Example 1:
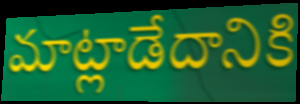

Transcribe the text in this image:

మాట్లాడేదానికి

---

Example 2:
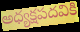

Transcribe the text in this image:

అధ్యక్షపదవికి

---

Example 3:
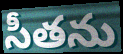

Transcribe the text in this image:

సీతను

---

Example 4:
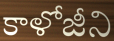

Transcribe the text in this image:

కాళోజీని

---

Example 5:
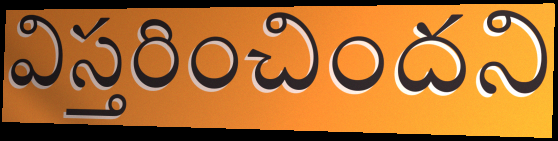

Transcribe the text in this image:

విస్తరించిందని